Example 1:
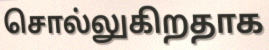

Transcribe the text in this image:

சொல்லுகிறதாக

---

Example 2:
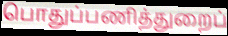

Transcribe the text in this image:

பொதுப்பணித்துறைப்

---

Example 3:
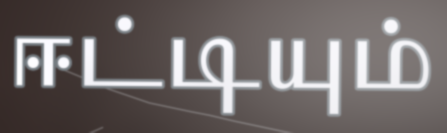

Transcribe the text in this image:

ஈட்டியும்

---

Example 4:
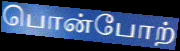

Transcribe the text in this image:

பொன்போற்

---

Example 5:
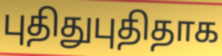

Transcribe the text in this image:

புதிதுபுதிதாக